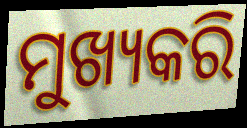
ମୁଖ୍ୟକରି